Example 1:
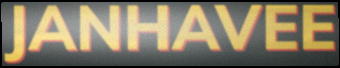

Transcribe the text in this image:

JANHAVEE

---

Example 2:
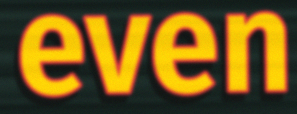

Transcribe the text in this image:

even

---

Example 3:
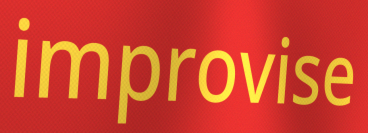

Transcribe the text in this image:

improvise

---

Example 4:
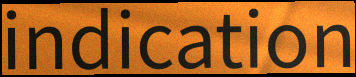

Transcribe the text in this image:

indication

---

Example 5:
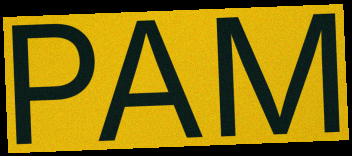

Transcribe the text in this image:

PAM